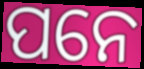
ପନେ